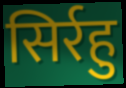
सिर्रहु